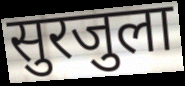
सुरजुला